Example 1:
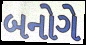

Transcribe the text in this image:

બનોગે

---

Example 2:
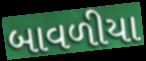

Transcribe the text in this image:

બાવળીયા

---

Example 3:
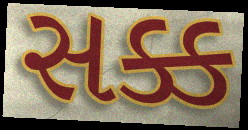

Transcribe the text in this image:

સક્ક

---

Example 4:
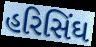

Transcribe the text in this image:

હરિસિંઘ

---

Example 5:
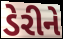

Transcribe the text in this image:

ડેરીને